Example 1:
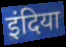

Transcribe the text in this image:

इंदिया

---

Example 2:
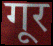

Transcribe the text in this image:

गूर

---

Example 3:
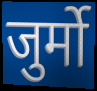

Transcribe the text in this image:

जुर्मो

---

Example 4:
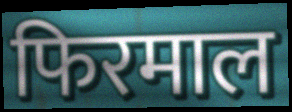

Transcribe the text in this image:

फिरमाल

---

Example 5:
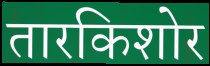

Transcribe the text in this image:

तारकिशोर